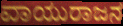
ವಾಯುರಾಜನ